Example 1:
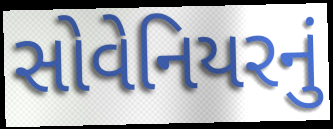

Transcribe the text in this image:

સોવેનિયરનું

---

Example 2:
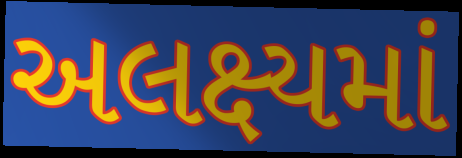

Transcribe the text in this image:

અલક્ષ્યમાં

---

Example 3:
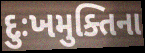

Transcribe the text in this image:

દુઃખમુક્તિના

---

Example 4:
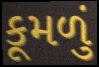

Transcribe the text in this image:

કૂમળું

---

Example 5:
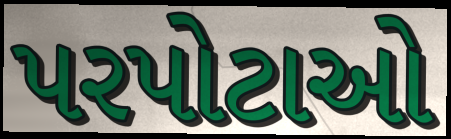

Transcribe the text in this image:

પરપોટાઓ